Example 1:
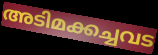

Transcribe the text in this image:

അടിമക്കച്ചവട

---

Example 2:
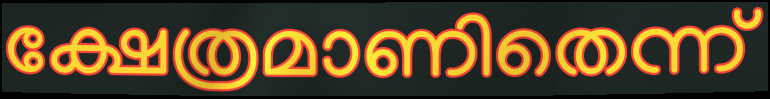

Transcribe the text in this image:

ക്ഷേത്രമാണിതെന്ന്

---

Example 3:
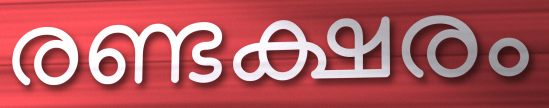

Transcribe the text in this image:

രണ്ടക്ഷരം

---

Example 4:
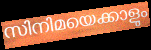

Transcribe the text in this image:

സിനിമയെക്കാളും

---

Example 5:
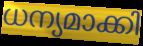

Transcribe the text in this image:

ധന്യമാക്കി